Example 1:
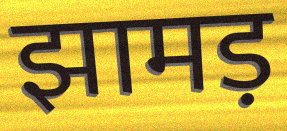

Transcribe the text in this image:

झामड़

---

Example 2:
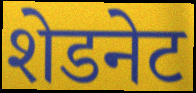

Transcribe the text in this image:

शेडनेट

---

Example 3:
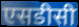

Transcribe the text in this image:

एसडीसी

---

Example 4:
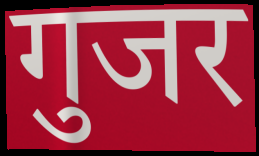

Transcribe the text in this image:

गुजर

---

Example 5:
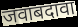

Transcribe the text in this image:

जवाबदावा